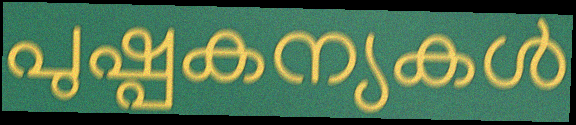
പുഷ്പകന്യകൾ